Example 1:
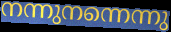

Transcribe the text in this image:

നന്നുനന്നെന്നു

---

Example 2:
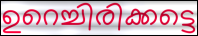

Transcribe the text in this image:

ഉറെച്ചിരിക്കട്ടെ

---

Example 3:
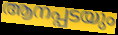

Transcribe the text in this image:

ആനപ്പടയും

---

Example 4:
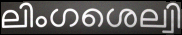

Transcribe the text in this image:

ലിംഗശെല്വി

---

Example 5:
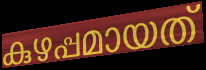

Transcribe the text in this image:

കുഴപ്പമായത്